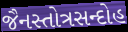
જૈનસ્તોત્રસન્દોહ